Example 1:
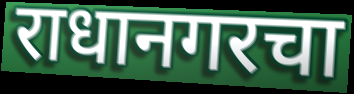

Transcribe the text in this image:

राधानगरचा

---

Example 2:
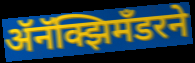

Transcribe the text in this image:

ॲनॅक्झिमँडरने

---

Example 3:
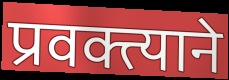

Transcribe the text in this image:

प्रवक्त्याने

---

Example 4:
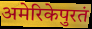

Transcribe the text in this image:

अमेरिकेपुरतं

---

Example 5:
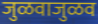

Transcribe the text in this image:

जुळवाजुळव